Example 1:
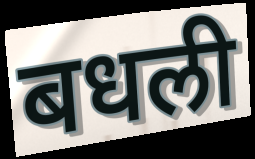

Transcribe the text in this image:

बधली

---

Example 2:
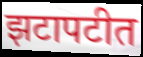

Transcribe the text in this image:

झटापटीत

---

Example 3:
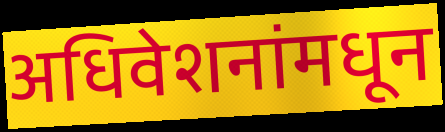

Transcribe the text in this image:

अधिवेशनांमधून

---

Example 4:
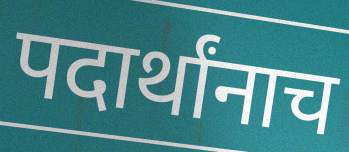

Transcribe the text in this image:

पदार्थांनाच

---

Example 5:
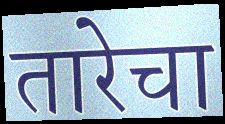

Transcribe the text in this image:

तारेचा